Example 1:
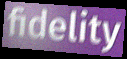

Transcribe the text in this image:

fidelity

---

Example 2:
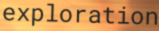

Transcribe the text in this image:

exploration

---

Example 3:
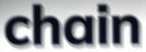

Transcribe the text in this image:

chain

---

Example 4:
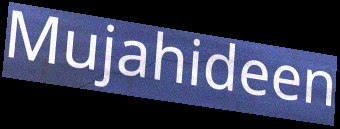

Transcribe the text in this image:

Mujahideen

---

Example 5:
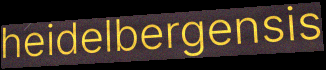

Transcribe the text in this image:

heidelbergensis